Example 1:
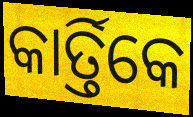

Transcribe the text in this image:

କାର୍ତ୍ତିକେ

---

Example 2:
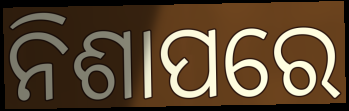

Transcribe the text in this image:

ନିଶାପରେ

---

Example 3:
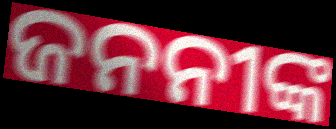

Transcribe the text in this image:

ଜନନୀଙ୍କ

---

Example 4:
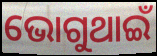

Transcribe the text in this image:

ଭୋଗୁଥାଇଁ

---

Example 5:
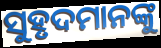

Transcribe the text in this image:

ସୁହୃଦମାନଙ୍କୁ